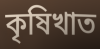
কৃষিখাত